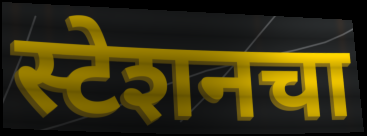
स्टेशनचा